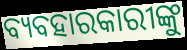
ବ୍ୟବହାରକାରୀଙ୍କୁ